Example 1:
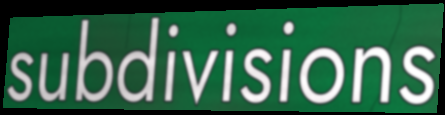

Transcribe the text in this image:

subdivisions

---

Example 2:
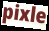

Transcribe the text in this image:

pixle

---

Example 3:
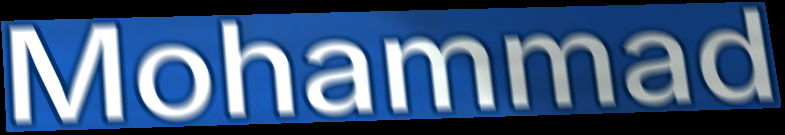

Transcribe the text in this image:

Mohammad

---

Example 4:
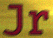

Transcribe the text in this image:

Jr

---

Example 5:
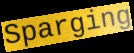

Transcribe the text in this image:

Sparging